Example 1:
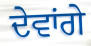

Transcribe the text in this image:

ਦੇਵਾਂਗੇ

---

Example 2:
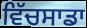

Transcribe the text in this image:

ਵਿੱਚਸਾਡਾ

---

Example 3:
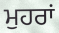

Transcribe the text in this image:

ਮੁਹਰਾਂ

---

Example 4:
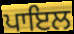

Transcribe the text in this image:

ਪਾਇਲ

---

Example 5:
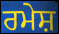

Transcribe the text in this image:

ਰਮੇਸ਼